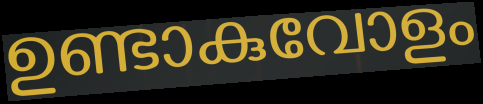
ഉണ്ടാകുവോളം